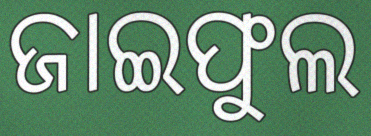
ଜାଇଫୁଲ